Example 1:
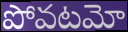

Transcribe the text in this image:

పోవటమో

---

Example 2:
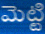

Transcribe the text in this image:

మెట్టి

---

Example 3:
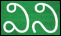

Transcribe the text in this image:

విని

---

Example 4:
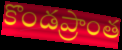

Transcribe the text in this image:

కొండప్రాంత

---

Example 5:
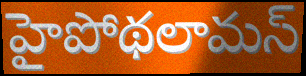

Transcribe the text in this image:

హైపోథలామస్